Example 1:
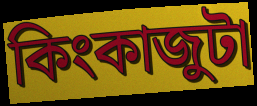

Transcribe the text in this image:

কিংকাজুটা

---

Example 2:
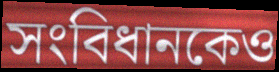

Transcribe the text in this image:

সংবিধানকেও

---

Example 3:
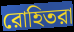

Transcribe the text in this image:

রোহিতরা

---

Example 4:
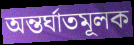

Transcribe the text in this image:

অন্তর্ঘাতমূলক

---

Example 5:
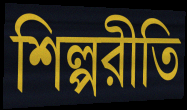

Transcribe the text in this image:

শিল্পরীতি